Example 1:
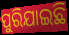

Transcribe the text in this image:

ପୁରିଯାଇଛି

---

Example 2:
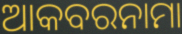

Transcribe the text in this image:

ଆକବରନାମା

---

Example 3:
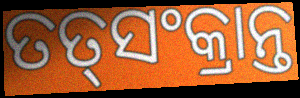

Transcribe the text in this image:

ତତ୍‌ସଂକ୍ରାନ୍ତ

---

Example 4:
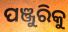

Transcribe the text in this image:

ପଞ୍ଜୁରିକୁ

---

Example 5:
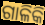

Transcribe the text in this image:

ଗାଳିକି